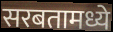
सरबतामध्ये